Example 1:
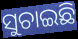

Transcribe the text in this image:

ସୁଚାଇଛି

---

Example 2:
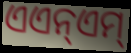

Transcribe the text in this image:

ଏଏନ୍ଏମ୍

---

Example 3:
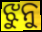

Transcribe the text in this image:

ଝୁନୁ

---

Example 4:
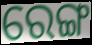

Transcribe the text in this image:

ରେଙ୍ଗ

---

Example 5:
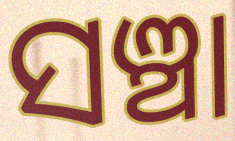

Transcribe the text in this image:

ସଞ୍ଚା